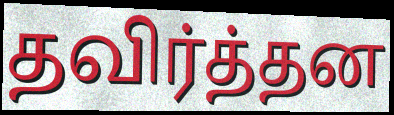
தவிர்த்தன